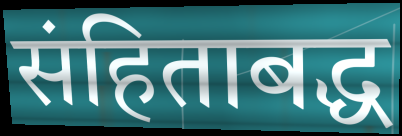
संहिताबद्ध